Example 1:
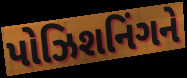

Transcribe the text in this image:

પોઝિશનિંગને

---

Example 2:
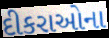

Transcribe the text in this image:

દીકરાઓના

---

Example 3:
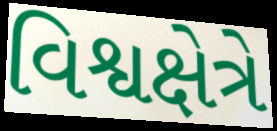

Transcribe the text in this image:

વિશ્વક્ષેત્રે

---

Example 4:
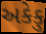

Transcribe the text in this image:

અકેકુ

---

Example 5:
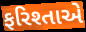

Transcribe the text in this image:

ફરિશ્તાએ